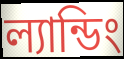
ল্যান্ডিং